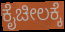
ಕೈಚೀಲಕ್ಕೆ